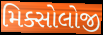
મિક્સોલોજી